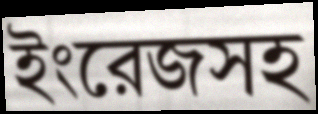
ইংরেজসহ